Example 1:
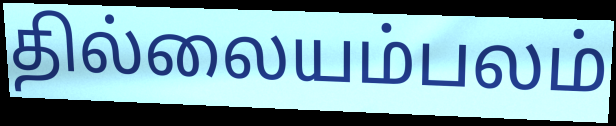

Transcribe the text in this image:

தில்லையம்பலம்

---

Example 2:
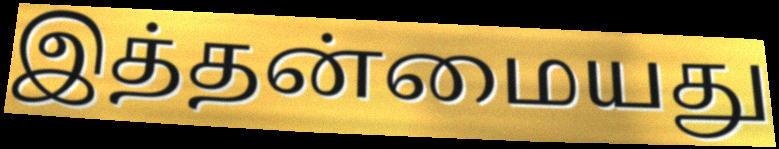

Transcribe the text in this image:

இத்தன்மையது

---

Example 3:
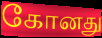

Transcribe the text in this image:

கோனது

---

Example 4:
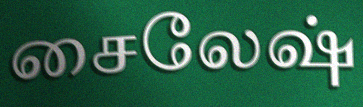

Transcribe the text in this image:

சைலேஷ்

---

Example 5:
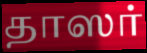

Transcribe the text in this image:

தாஸர்